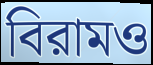
বিরামও